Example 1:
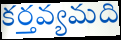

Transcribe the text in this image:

కర్తవ్యమది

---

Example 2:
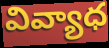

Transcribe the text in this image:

వివ్యాధ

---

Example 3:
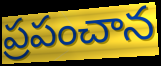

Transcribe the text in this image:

ప్రపంచాన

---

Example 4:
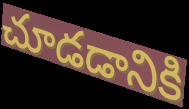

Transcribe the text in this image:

చూడడానికి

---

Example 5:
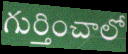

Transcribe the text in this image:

గుర్తించాలో